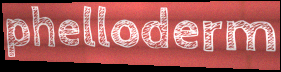
phelloderm